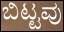
ಬಿಟ್ಟವು